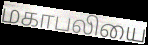
மகாபலியை